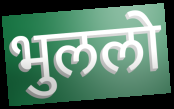
भुललो